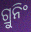
ଗ୍ରୁନିଂ